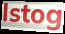
Istog